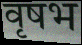
वृषभ